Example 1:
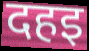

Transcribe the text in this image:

दहइ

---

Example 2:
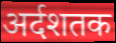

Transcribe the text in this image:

अर्दशतक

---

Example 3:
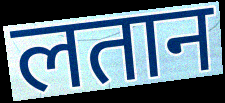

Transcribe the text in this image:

लतान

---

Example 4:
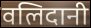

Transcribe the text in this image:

वलिदानी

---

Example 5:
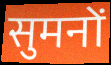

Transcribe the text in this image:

सुमनों